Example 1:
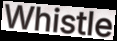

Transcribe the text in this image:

Whistle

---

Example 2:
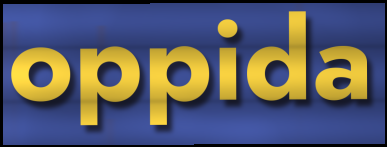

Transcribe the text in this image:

oppida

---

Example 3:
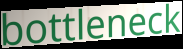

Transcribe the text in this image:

bottleneck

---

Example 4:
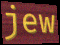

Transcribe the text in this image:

jew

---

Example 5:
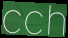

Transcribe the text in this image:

cch